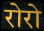
रोरो